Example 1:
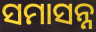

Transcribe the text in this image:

ସମାସନ୍ନ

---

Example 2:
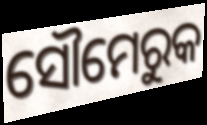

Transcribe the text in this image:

ସୌମେରୁକ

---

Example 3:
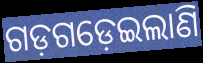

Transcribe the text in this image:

ଗଡ଼ଗଡ଼େଇଲାଣି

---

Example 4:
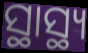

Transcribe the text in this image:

ସ୍ଥାସ୍ଥ୍ୟ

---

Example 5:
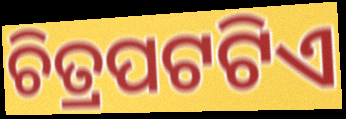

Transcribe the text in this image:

ଚିତ୍ରପଟଟିଏ